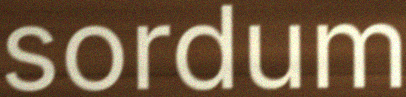
sordum